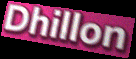
Dhillon